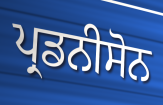
ਪ੍ਰਡਨੀਸੋਨ